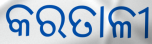
କରତାଳୀ